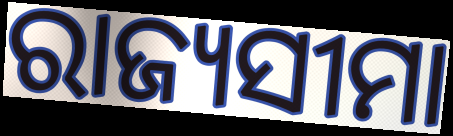
ରାଜ୍ୟସୀମା